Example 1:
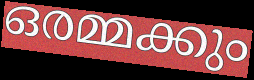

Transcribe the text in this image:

ഒരമ്മക്കും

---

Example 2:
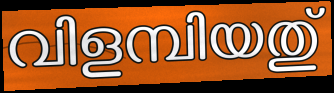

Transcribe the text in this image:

വിളമ്പിയതു്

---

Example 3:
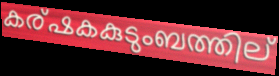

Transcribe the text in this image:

കര്ഷകകുടുംബത്തില്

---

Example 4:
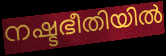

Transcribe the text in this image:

നഷ്ടഭീതിയിൽ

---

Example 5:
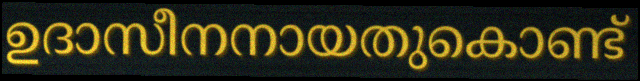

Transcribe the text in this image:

ഉദാസീനനായതുകൊണ്ട്